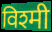
विश्मी